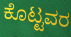
ಕೊಟ್ಟವರ